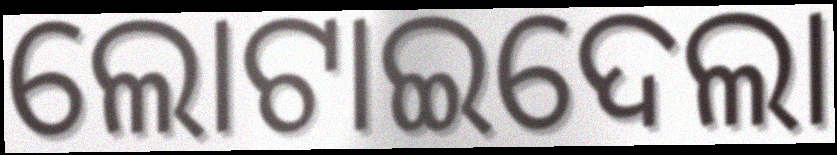
ଲୋଟାଇଦେଲା